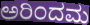
ಅರಿಂದಮ